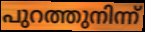
പുറത്തുനിന്ന്